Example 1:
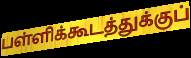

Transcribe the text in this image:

பள்ளிக்கூடத்துக்குப்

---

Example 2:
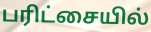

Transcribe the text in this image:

பரிட்சையில்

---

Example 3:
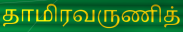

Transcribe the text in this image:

தாமிரவருணித்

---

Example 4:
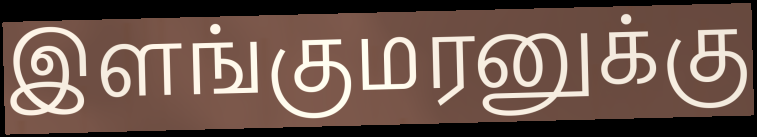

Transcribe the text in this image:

இளங்குமரனுக்கு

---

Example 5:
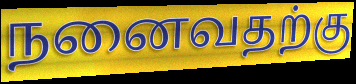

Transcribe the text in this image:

நனைவதற்கு